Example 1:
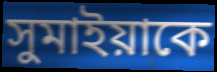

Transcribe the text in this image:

সুমাইয়াকে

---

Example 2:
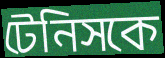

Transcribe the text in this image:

টেনিসকে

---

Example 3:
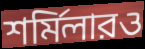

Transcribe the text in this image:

শর্মিলারও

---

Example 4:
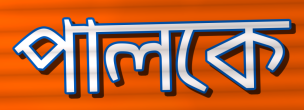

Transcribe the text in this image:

পালকে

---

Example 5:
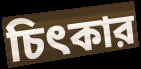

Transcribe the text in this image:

চিৎকার